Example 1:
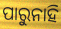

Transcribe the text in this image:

ପାରୁନାହି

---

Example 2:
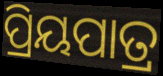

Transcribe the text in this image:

ପ୍ରିୟପାତ୍ର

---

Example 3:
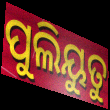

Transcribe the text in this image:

ପୁଲିୟୁତୁ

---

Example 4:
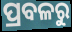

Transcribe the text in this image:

ପ୍ରବଳରୁ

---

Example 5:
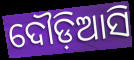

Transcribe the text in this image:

ଦୌଡ଼ିଆସି